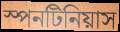
স্পনটিনিয়াস